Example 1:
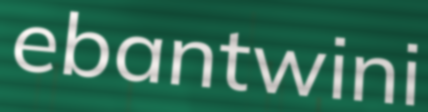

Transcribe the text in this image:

ebantwini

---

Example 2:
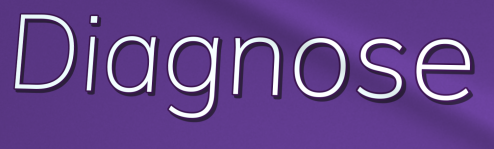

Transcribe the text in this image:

Diagnose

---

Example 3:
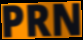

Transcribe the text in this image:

PRN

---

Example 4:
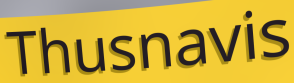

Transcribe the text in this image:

Thusnavis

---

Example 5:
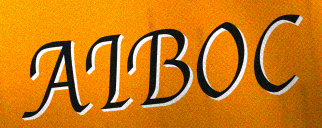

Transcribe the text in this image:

AIBOC